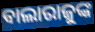
ବାଲାରାଜୁଙ୍କ